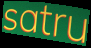
satru